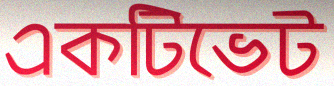
একটিভেট